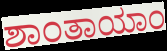
ಶಾಂತಾಯಾಂ